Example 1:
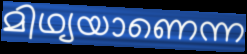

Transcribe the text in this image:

മിഥ്യയാണെന്ന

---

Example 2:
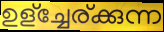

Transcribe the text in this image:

ഉള്ച്ചേര്ക്കുന്ന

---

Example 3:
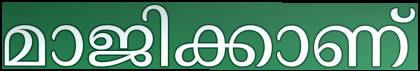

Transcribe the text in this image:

മാജിക്കാണ്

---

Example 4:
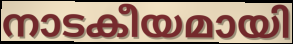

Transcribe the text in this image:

നാടകീയമായി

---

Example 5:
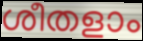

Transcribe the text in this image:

ശീതളാം